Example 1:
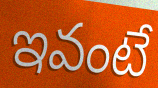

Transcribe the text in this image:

ఇవంటే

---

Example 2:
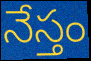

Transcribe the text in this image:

నేస్తం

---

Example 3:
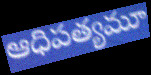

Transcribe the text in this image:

ఆధిపత్యమూ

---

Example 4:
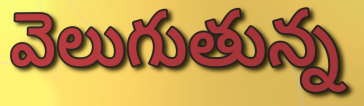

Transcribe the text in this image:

వెలుగుతున్న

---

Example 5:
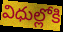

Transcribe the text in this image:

విధుల్లోకి